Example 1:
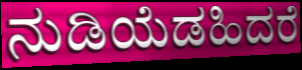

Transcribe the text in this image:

ನುಡಿಯೆಡಹಿದರೆ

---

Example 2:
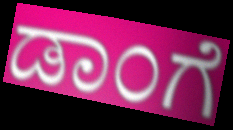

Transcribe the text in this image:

ಡಾಂಗೆ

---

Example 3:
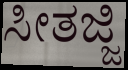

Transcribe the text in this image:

ಸೀತಜ್ಜಿ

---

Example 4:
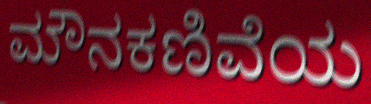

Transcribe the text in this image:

ಮೌನಕಣಿವೆಯ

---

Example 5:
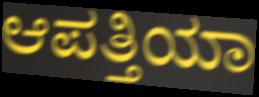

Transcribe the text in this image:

ಆಪತ್ತಿಯಾ